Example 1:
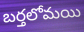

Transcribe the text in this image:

బర్తలోమయి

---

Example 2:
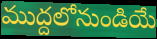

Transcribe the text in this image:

ముద్దలోనుండియే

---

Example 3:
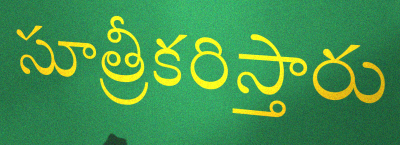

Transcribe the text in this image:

సూత్రీకరిస్తారు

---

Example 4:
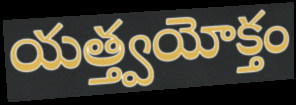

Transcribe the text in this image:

యత్త్వయోక్తం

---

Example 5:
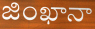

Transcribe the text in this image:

జింఖానా